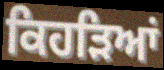
ਕਿਹੜਿਆਂ